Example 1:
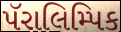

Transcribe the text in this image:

પૅરાલિમ્પિક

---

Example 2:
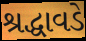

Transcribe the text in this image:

શ્રદ્ધાવડે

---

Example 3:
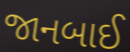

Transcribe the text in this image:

જાનબાઈ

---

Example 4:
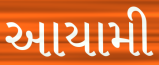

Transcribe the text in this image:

આયામી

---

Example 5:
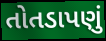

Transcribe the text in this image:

તોતડાપણું